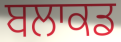
ਬਲਾਕਡ